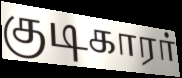
குடிகாரர்